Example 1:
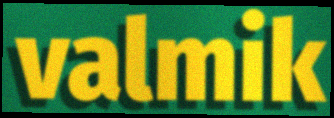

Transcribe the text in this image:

valmik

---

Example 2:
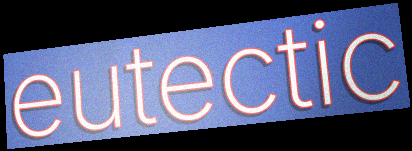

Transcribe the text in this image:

eutectic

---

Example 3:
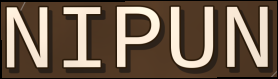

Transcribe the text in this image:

NIPUN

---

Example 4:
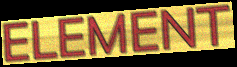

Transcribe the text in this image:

ELEMENT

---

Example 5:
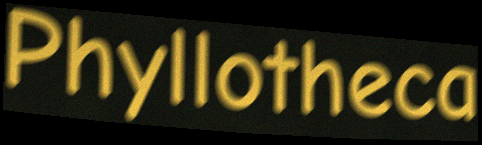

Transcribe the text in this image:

Phyllotheca